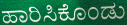
ಹಾರಿಸಿಕೊಂಡು